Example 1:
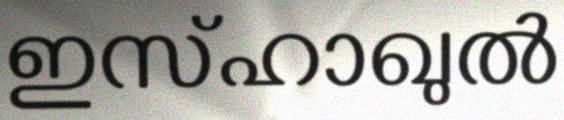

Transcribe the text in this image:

ഇസ്ഹാഖുൽ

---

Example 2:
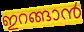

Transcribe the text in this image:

ഇറങ്ങാൻ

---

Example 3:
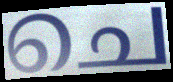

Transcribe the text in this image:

ചെ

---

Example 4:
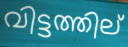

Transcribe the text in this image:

വിട്ടത്തില്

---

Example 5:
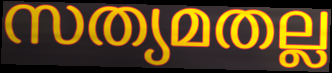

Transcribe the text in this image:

സത്യമതല്ല